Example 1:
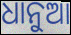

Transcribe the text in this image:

ଧାନୁଆ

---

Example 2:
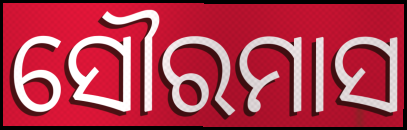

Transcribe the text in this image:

ସୌରମାସ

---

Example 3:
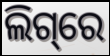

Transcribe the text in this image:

ଲିଗ୍‌ରେ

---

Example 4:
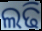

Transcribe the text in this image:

ଲଢି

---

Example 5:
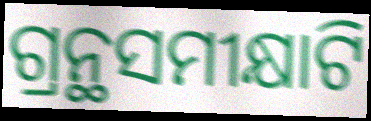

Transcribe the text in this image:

ଗ୍ରନ୍ଥସମୀକ୍ଷାଟି